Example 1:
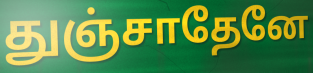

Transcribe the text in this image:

துஞ்சாதேனே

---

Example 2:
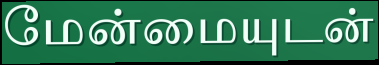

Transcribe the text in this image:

மேன்மையுடன்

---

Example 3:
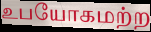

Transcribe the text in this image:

உபயோகமற்ற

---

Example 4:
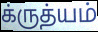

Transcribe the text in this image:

க்ருத்யம்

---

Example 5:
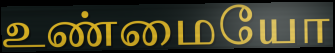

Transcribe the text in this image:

உண்மையோ